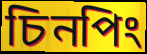
চিনপিং